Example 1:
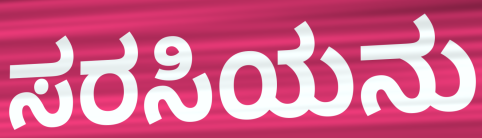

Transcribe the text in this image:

ಸರಸಿಯನು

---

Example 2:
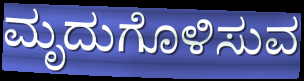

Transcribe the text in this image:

ಮೃದುಗೊಳಿಸುವ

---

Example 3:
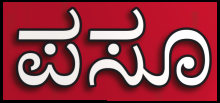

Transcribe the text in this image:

ಪಸೂ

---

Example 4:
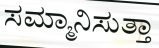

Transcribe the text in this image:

ಸಮ್ಮಾನಿಸುತ್ತಾ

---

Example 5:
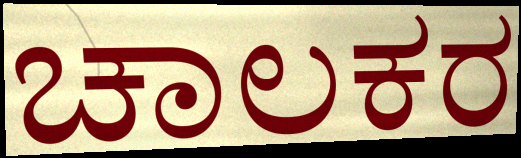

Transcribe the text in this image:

ಚಾಲಕರ